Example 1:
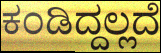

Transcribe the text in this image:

ಕಂಡಿದ್ದಲ್ಲದೆ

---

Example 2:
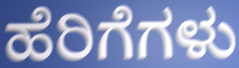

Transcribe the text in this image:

ಹೆರಿಗೆಗಳು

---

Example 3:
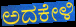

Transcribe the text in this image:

ಅದಕೇಳಿ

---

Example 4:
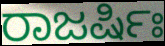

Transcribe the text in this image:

ರಾಜರ್ಷಿಃ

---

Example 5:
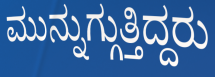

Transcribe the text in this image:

ಮುನ್ನುಗ್ಗುತ್ತಿದ್ದರು